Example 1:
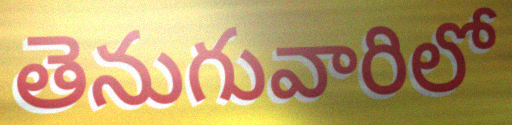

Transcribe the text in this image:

తెనుగువారిలో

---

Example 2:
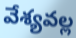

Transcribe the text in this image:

వేశ్యవల్ల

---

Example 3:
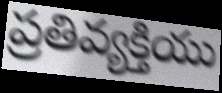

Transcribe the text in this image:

ప్రతివ్యక్తియు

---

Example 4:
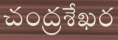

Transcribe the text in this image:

చంద్రశేఖర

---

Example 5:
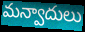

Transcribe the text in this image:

మన్వాదులు